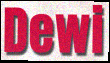
Dewi